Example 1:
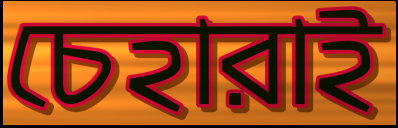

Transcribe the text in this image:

চেহারাই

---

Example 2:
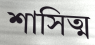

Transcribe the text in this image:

শাসিত্ম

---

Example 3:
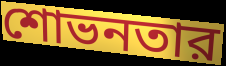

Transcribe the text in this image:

শোভনতার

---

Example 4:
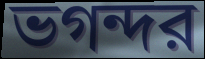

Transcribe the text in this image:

ভগন্দর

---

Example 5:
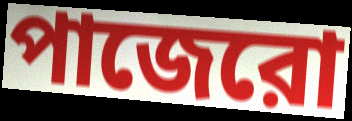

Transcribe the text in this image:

পাজেরো